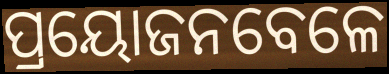
ପ୍ରୟୋଜନବେଳେ